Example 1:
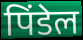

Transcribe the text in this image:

पिंडेल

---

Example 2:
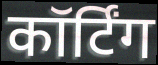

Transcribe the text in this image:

कॉर्टिंग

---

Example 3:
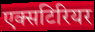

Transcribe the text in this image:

एक्सटिरियर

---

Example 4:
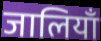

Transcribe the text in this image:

जालियाँ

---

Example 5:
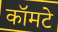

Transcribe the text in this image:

कॉमटे